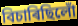
বিচাৰিছিলোঁ